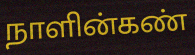
நாளின்கண்